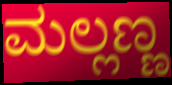
ಮಲ್ಲಣ್ಣ